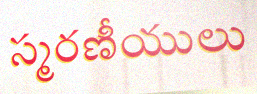
స్మరణీయులు